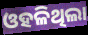
ଓହଳିଥିଲା